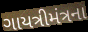
ગાયત્રીમંત્રના